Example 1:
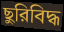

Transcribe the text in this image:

ছুরিবিদ্ধ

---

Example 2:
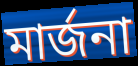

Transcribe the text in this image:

মার্জনা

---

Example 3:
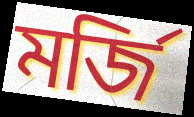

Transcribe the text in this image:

মর্জি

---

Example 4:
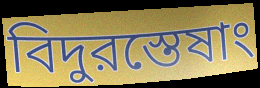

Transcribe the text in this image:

বিদুরস্তেষাং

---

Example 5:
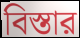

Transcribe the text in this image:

বিস্তার